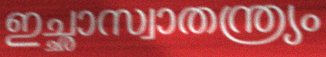
ഇച്ഛാസ്വാതന്ത്ര്യം